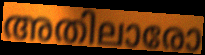
അതിലാരോ